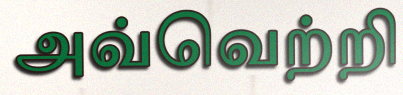
அவ்வெற்றி